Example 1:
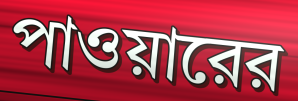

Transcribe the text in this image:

পাওয়ারের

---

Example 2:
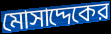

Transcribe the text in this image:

মোসাদ্দেকের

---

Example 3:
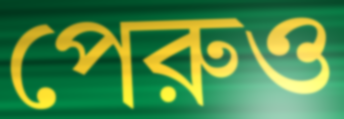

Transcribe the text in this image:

পেরুও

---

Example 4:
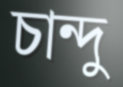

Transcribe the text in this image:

চান্দু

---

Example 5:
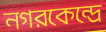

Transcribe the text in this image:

নগরকেন্দ্রে